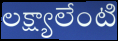
లక్ష్యాలేంటి